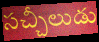
సచ్చీలుడు